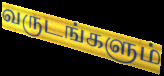
வருடங்களும்